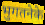
भुगतनेके